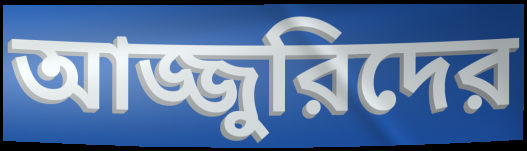
আজ্জুরিদের